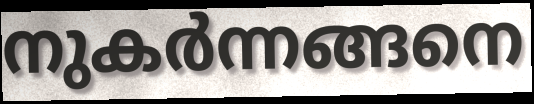
നുകർന്നങ്ങനെ